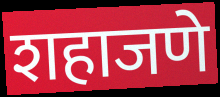
शहाजणे